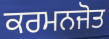
ਕਰਮਨਜੋਤ